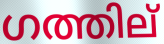
ഗത്തില്